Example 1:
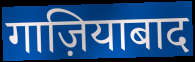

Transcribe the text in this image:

गाज़ियाबाद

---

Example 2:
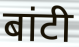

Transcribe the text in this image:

बांटी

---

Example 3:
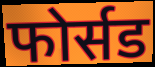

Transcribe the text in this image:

फोर्सड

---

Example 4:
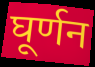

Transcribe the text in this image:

घूर्णन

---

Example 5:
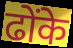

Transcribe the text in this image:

ढोंके